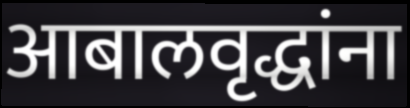
आबालवृद्धांना